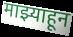
माझ्याहून